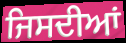
ਜਿਸਦੀਆਂ